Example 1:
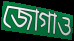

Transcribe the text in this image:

জোগাও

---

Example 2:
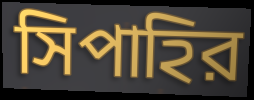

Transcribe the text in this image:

সিপাহির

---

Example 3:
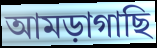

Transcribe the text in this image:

আমড়াগাছি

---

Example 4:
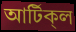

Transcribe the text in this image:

আর্টিক্‌ল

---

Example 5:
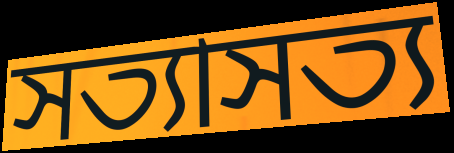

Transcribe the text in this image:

সত্যাসত্য